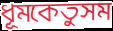
ধূমকেতুসম